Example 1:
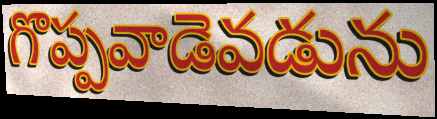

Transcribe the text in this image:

గొప్పవాడెవడును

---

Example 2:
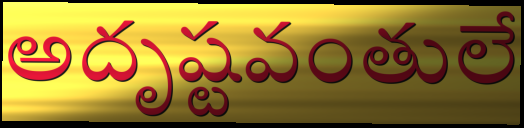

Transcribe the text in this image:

అదృష్టవంతులే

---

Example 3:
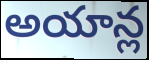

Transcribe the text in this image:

అయాన్ల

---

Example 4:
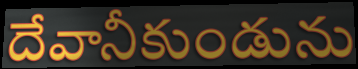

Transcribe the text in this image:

దేవానీకుండును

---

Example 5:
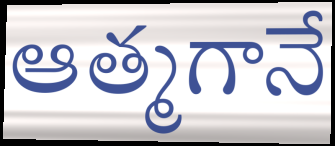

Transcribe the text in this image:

ఆత్మగానే